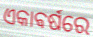
ଏକାଵର୍ଷରେ